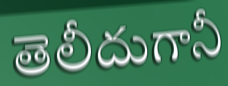
తెలీదుగానీ